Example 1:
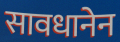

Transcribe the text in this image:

सावधानेन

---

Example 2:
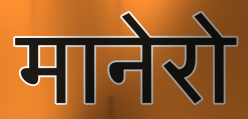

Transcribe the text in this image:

मानेरो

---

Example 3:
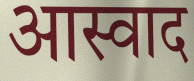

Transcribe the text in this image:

आस्‍वाद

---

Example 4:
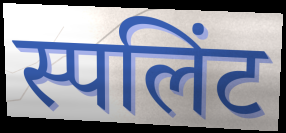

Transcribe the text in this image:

स्पलिंट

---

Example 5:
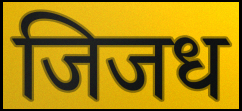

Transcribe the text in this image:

जिजध